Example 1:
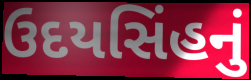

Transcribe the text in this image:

ઉદયસિંહનું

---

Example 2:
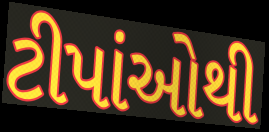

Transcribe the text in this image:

ટીપાંઓથી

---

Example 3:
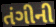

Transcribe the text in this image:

તંગીની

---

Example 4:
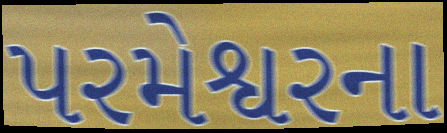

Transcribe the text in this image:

પરમેશ્વરના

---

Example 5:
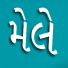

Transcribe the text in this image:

મેલે